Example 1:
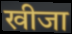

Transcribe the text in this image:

खीजा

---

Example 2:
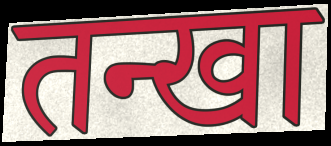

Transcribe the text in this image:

तन्खा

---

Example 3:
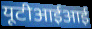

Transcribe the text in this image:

यूटीआईआई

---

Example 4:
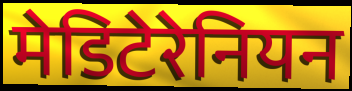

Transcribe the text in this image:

मेडिटेरेनियन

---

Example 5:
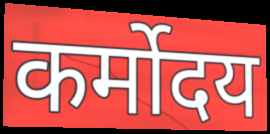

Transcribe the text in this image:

कर्मोदय